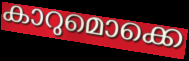
കാറുമൊക്കെ